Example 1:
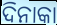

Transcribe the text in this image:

ଦିନାକା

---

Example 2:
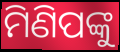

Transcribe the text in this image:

ମିଣିପଙ୍କୁ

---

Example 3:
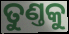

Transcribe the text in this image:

ତୁଣ୍ତକୁ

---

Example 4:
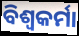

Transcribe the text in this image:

ବିଶ୍ବକର୍ମା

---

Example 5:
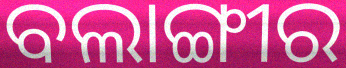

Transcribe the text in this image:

ବଲାଙ୍ଗୀର